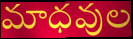
మాధవుల